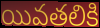
యివతలికి